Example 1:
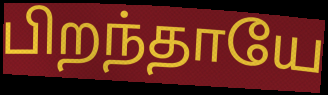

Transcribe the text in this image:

பிறந்தாயே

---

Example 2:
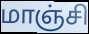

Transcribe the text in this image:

மாஞ்சி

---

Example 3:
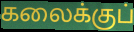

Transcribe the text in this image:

கலைக்குப்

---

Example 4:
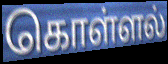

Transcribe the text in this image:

கொள்ளல்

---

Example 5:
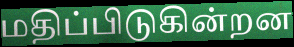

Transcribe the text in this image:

மதிப்பிடுகின்றன